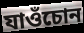
যাওঁচোন